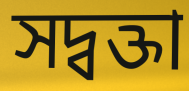
সদ্বক্তা